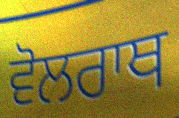
ਵੋਲਰਾਥ